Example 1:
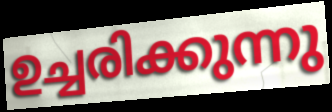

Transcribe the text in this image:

ഉച്ചരിക്കുന്നു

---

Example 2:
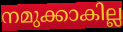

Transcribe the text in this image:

നമുക്കാകില്ല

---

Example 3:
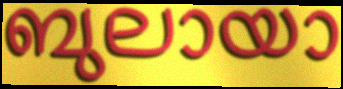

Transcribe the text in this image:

ബുലായാ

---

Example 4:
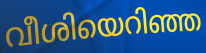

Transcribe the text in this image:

വീശിയെറിഞ്ഞ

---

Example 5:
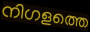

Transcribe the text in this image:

നിഗളത്തെ